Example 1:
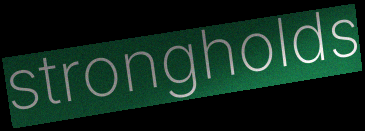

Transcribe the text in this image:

strongholds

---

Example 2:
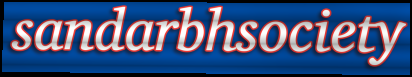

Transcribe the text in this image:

sandarbhsociety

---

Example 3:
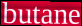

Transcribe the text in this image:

butane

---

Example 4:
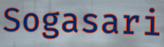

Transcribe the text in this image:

Sogasari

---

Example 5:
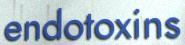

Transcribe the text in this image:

endotoxins